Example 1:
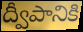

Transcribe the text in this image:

ద్వీపానికి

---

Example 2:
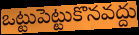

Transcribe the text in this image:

ఒట్టుపెట్టుకొనవద్దు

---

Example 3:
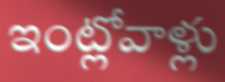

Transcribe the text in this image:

ఇంట్లోవాళ్లు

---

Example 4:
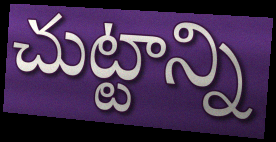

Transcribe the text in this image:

చుట్టాన్ని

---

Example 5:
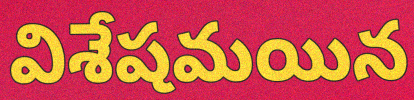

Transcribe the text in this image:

విశేషమయిన